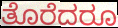
ತೊರೆದರೂ